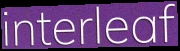
interleaf